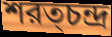
শরত্চন্দ্র